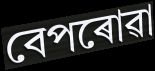
বেপৰোৱা